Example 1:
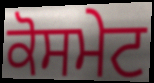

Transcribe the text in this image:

ਕੋਸਮੇਟ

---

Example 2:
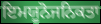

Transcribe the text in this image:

ਇਮਯੂਨੋਜਨਿਕਤਾ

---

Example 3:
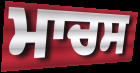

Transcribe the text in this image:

ਮਾਚਸ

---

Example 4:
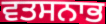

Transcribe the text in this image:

ਵਤਸਨਾਭ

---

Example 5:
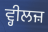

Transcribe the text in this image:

ਵ੍ਹੀਲਜ਼